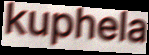
kuphela